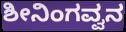
ಶೀನಿಂಗವ್ವನ